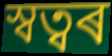
স্বত্বৰ